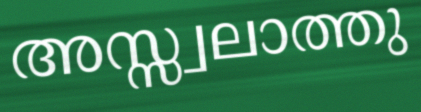
അസ്സ്വലാത്തു